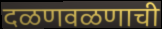
दळणवळणाची